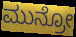
ಮುನ್ರೋ